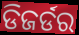
ଡିଜର୍ଡର